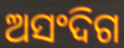
ଅସଂଦିଗ